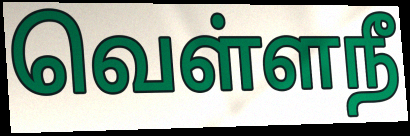
வெள்ளநீ